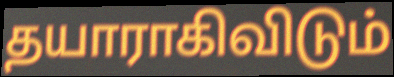
தயாராகிவிடும்